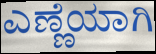
ಎಣ್ಣೆಯಾಗಿ